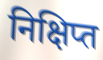
निक्षिप्त